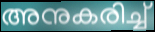
അനുകരിച്ച്